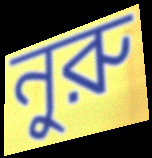
নুরু